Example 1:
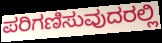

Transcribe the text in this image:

ಪರಿಗಣಿಸುವುದರಲ್ಲಿ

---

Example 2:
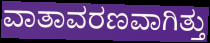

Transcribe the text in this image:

ವಾತಾವರಣವಾಗಿತ್ತು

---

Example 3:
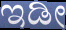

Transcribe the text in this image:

ಇಡೀ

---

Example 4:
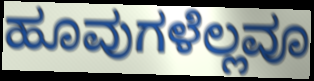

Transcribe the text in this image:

ಹೂವುಗಳೆಲ್ಲವೂ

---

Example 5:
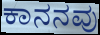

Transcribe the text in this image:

ಕಾನನವು